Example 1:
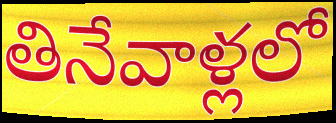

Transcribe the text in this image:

తినేవాళ్లలో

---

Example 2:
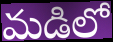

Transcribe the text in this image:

మడిలో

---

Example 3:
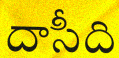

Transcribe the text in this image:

దాసీది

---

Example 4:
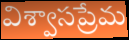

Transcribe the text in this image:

విశ్వాసప్రేమ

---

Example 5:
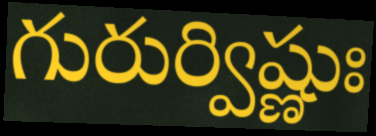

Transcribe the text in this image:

గురుర్విష్ణుః